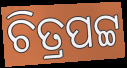
ଚିତ୍ରପଟ୍ଟ